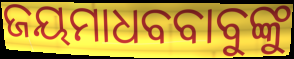
ଜୟମାଧବବାବୁଙ୍କୁ